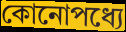
কোনোপধ্যে